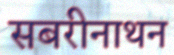
सबरीनाथन